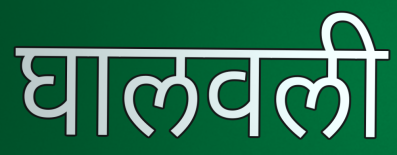
घालवली